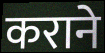
कराने